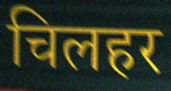
चिलहर